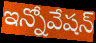
ఇన్నోవేషన్